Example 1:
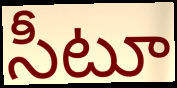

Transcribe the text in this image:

సీటూ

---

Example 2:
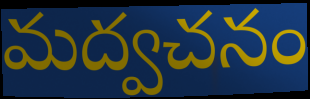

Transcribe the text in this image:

మద్వచనం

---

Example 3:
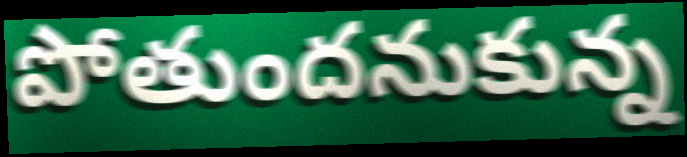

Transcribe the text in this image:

పోతుందనుకున్న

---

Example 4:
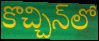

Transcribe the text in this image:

కొచ్చిన్‌లో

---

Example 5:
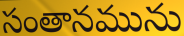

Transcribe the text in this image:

సంతానమును